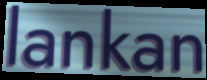
lankan